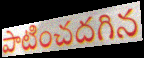
పాటించదగిన